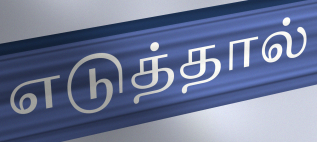
எடுத்தால்